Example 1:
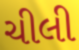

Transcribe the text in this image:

ચીલી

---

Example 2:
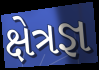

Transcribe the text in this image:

ક્ષેત્રજ્ઞ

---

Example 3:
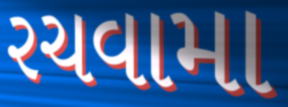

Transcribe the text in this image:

રચવામા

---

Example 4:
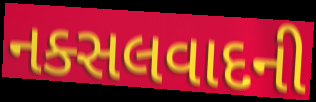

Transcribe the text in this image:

નક્સલવાદની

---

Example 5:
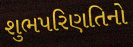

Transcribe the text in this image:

શુભપરિણતિનો